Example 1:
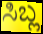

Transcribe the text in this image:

ಸಿಬ್ಲ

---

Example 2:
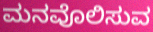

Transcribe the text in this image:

ಮನವೊಲಿಸುವ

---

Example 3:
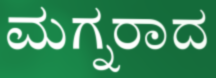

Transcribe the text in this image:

ಮಗ್ನರಾದ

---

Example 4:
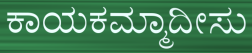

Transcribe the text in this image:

ಕಾಯಕಮ್ಮಾದೀಸು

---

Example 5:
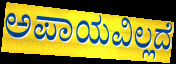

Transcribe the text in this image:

ಅಪಾಯವಿಲ್ಲದೆ